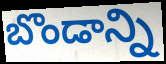
బొండాన్ని